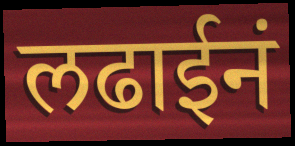
लढाईनं